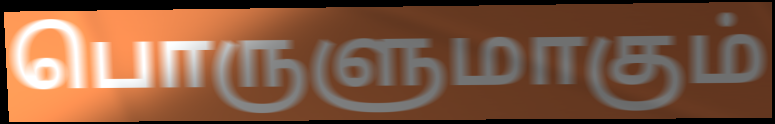
பொருளுமாகும்